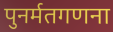
पुनर्मतगणना